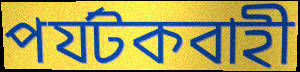
পর্যটকবাহী